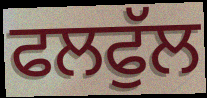
ਫਲਫੁੱਲ